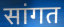
सांगत